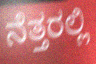
ನೆತ್ತರಲ್ಲಿ